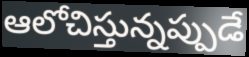
ఆలోచిస్తున్నప్పుడే